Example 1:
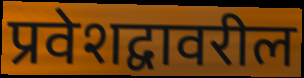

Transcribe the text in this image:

प्रवेशद्वावरील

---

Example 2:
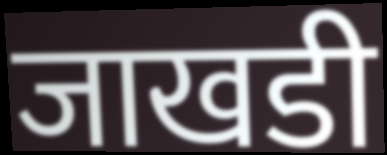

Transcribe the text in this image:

जाखडी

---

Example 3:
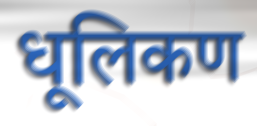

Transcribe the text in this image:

धूलिकण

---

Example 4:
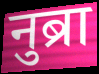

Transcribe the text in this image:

नुब्रा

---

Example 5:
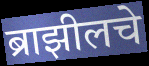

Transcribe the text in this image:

ब्राझीलचे